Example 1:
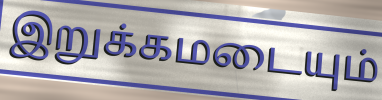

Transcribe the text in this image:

இறுக்கமடையும்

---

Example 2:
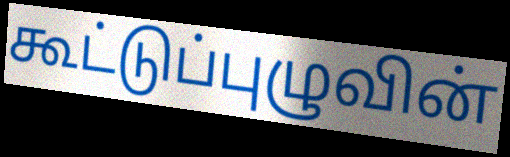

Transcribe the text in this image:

கூட்டுப்புழுவின்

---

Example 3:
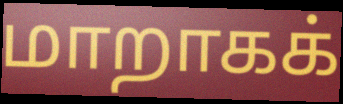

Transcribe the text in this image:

மாறாகக்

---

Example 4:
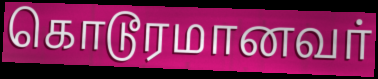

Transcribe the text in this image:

கொடூரமானவர்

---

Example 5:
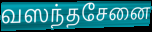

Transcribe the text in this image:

வஸந்தசேனை